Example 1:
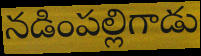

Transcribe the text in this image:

నడింపల్లిగాడు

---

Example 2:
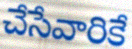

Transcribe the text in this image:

చేసేవారికే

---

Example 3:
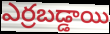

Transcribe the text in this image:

ఎర్రబడ్డాయి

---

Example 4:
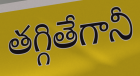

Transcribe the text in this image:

తగ్గితేగానీ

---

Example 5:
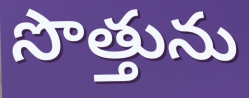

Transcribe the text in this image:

సొత్తును